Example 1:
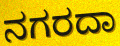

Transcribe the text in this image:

ನಗರದಾ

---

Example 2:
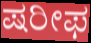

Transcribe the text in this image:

ಷರೀಫ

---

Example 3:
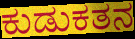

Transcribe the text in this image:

ಕುಡುಕತನ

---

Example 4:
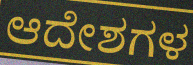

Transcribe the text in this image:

ಆದೇಶಗಳ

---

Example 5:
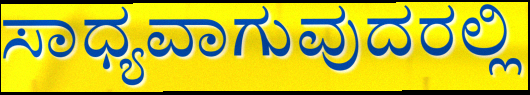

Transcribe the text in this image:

ಸಾಧ್ಯವಾಗುವುದರಲ್ಲಿ